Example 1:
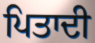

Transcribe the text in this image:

ਪਿਤਾਦੀ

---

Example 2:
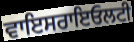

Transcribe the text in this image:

ਵਾਇਸਰਾਇਓਲਟੀ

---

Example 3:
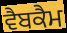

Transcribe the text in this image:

ਵੈਬਕੈਮ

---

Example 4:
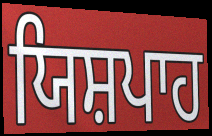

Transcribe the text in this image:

ਯਿਸ਼ਪਾਹ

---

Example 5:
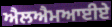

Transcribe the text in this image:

ਐਲਐਮਆਈਏ